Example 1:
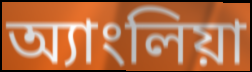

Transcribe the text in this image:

অ্যাংলিয়া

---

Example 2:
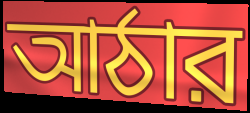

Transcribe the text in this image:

আঠার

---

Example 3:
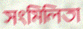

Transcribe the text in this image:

সংমিলিতা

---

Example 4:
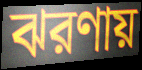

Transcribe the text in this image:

ঝরণায়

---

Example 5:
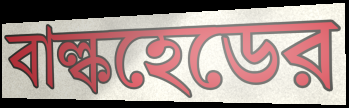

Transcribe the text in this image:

বাল্কহেডের